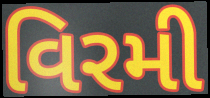
વિરમી